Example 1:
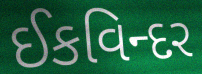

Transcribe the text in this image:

ઈકવિન્દર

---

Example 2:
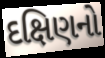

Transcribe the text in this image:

દક્ષિણનો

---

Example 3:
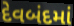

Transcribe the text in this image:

દેવબંદમાં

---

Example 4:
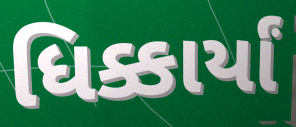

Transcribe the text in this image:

ધિક્કાર્યાં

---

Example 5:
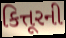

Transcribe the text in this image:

કિત્તૂરની